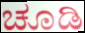
ಚೂಡಿ